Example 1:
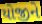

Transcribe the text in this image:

યોજીને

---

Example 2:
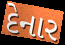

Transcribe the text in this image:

દેનાર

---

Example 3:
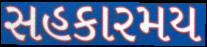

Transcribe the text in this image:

સહકારમય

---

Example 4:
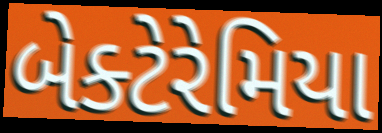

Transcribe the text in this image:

બેક્ટેરેમિયા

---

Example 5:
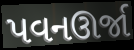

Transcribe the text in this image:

પવનઊર્જા